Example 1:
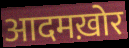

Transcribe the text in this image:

आदमख़ोर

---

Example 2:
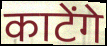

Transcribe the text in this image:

काटेंगे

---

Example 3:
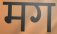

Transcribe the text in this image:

मग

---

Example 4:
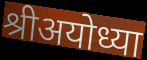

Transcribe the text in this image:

श्रीअयोध्या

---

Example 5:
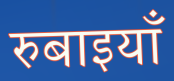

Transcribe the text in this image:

रुबाइयाँ